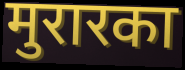
मुरारका